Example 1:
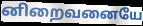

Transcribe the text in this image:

னிறைவனையே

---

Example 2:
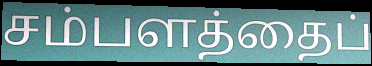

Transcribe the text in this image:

சம்பளத்தைப்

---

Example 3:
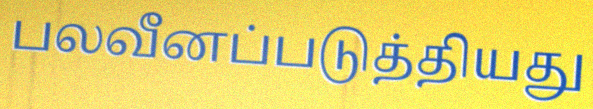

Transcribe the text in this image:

பலவீனப்படுத்தியது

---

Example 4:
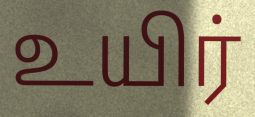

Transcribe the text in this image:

உயிர்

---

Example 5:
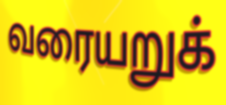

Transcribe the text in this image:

வரையறுக்